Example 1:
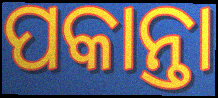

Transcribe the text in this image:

ପକାନ୍ତା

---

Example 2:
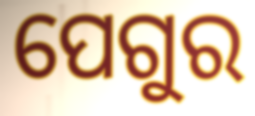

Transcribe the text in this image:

ପେଗୁର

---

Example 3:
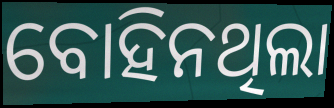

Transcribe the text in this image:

ବୋହିନଥିଲା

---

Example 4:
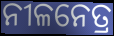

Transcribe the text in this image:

ନୀଳନେତ୍ର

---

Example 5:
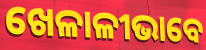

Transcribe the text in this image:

ଖେଳାଳୀଭାବେ